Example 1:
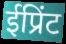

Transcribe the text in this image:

ईप्रिंट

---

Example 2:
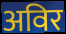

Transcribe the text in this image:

अविर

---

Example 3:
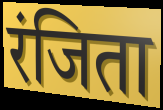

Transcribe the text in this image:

रंजिता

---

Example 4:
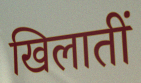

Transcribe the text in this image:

खिलातीं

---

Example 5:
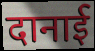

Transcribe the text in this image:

दानाई